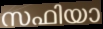
സഫിയാ